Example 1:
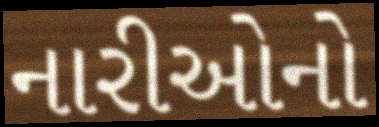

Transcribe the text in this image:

નારીઓનો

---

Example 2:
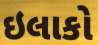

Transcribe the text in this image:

ઇલાકો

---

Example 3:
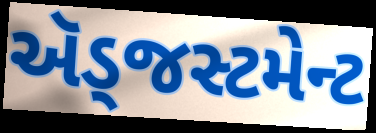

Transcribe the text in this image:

ઍડ્જસ્ટમેન્ટ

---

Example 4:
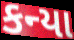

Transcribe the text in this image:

કન્યા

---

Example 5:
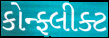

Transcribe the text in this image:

કોન્ફ્લીક્ટ